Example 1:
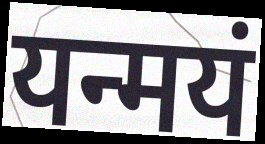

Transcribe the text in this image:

यन्मयं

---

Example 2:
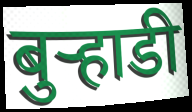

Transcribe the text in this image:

बुऱ्हाडी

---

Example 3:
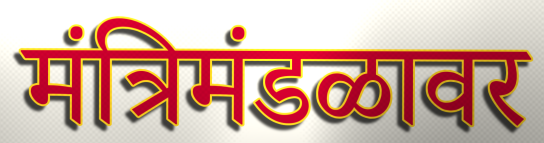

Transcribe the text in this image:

मंत्रिमंडळावर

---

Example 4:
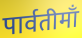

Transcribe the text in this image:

पार्वतीमाँ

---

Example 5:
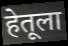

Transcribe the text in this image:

हेतूला